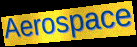
Aerospace